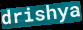
drishya